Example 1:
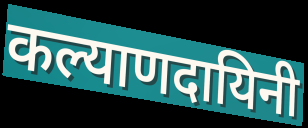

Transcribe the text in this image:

कल्याणदायिनी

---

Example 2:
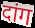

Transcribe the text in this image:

दांग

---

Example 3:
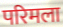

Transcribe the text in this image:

परिमला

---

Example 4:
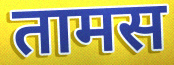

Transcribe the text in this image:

तामस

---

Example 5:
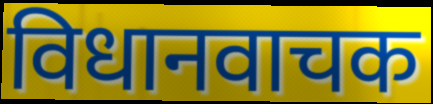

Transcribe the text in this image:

विधानवाचक